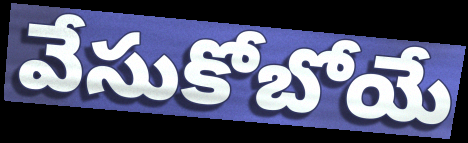
వేసుకోబోయే